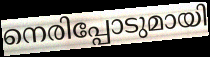
നെരിപ്പോടുമായി